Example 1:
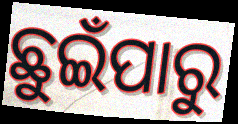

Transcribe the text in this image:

ଛୁଇଁପାରୁ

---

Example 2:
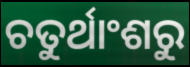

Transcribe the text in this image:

ଚତୁର୍ଥାଂଶରୁ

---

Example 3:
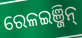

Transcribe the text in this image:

ରେଳଇଞ୍ଜିନ୍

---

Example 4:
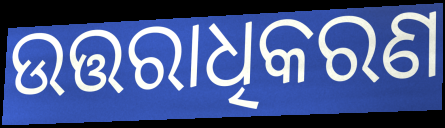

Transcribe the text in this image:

ଉତ୍ତରାଧିକରଣ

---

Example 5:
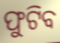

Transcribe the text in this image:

ଫୁଟିବ